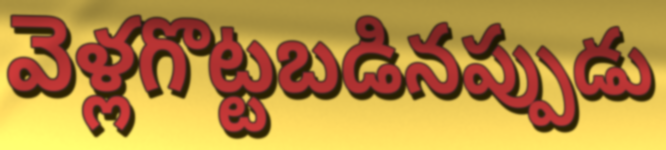
వెళ్లగొట్టబడినప్పుడు